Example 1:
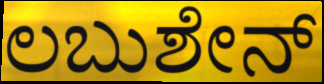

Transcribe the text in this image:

ಲಬುಶೇನ್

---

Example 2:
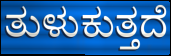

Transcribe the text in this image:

ತುಳುಕುತ್ತದೆ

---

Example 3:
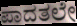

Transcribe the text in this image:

ಪಾದತಲೇ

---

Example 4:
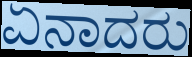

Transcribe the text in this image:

ಏನಾದರು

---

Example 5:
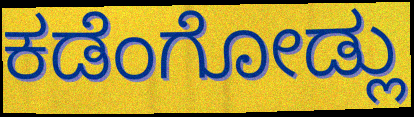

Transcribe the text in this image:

ಕಡೆಂಗೋಡ್ಲು